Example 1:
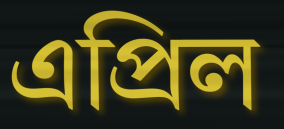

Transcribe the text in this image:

এপ্রিল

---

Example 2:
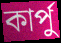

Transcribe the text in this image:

কার্পু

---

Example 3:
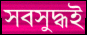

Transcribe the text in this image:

সবসুদ্ধই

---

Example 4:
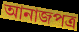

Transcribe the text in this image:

আনাজপত্র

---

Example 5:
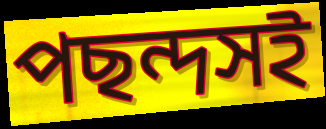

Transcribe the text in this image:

পছন্দসই